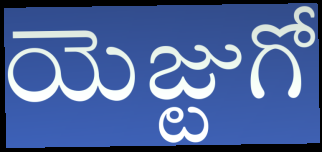
యెజ్టుగో